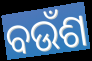
ବଉଁଶ